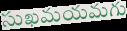
సుఖమయమగు